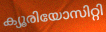
ക്യൂരിയോസിറ്റി